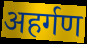
अहर्गण